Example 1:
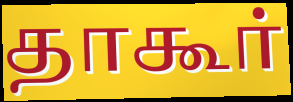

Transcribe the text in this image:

தாகூர்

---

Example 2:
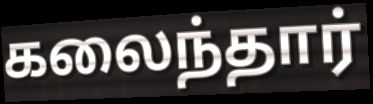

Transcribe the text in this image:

கலைந்தார்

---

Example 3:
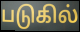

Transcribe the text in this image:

படுகில்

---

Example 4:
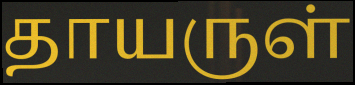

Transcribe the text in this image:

தாயருள்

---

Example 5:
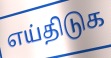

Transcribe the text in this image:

எய்திடுக